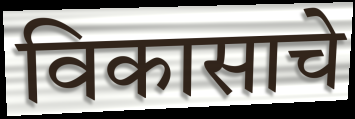
विकासाचे